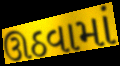
ઊઠવામાં